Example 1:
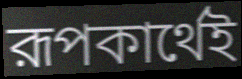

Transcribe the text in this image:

রূপকার্থেই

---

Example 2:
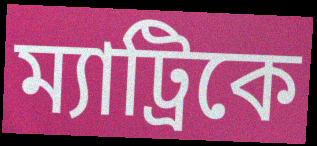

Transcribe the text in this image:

ম্যাট্রিকে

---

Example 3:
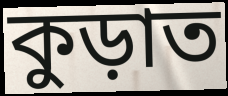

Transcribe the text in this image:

কুড়াত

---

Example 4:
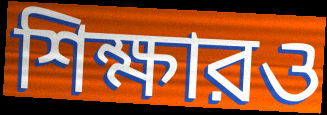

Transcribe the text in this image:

শিক্ষারও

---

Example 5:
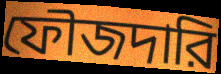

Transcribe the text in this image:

ফৌজদারি